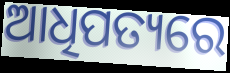
ଆଧିପତ୍ୟରେ